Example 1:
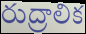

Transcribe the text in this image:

రుద్రాలిక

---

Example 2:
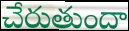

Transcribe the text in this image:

చేరుతుందా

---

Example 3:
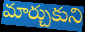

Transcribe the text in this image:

మార్చుకుని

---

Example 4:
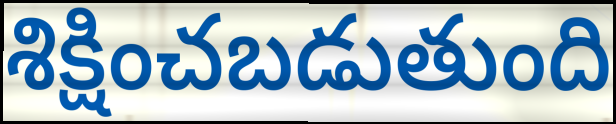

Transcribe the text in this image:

శిక్షించబడుతుంది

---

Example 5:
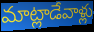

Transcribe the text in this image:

మాట్లాడేవాళ్లు